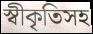
স্বীকৃতিসহ